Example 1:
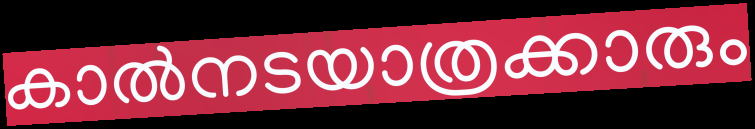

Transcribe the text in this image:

കാൽനടയാത്രക്കാരും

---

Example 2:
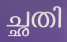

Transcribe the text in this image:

ച്ഛതി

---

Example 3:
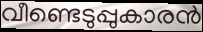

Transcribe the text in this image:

വീണ്ടെടുപ്പുകാരൻ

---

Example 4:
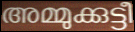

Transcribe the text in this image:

അമ്മുക്കുട്ടീ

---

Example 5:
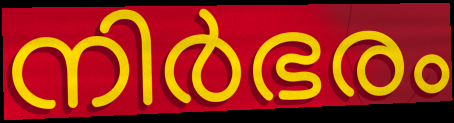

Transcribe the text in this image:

നിർഭരം